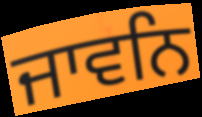
ਜਾਵਨਿ